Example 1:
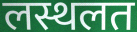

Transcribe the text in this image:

लस्थलत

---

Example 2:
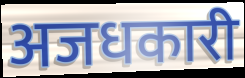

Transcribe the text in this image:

अजधकारी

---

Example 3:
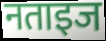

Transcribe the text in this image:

नताइज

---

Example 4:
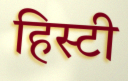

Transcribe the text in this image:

हिस्टी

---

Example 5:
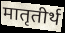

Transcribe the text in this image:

मातृतीर्थ